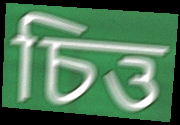
চিত্ত